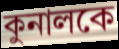
কুনালকে